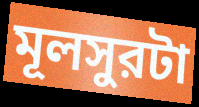
মূলসুরটা